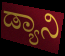
ಡ್ಯಾನಿ